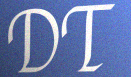
DT